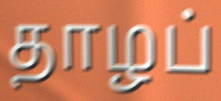
தாழப்